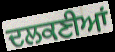
ਦਲਕਣੀਆਂ